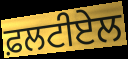
ਫ਼ਲਟੀਏਲ